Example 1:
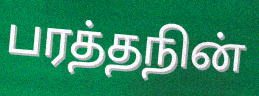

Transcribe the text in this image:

பரத்தநின்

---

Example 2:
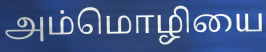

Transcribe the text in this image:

அம்மொழியை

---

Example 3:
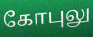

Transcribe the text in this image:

கோபுலு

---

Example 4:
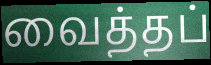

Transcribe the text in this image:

வைத்தப்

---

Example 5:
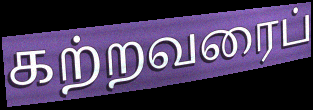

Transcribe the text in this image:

கற்றவரைப்